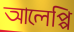
আলেপ্পি